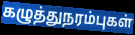
கழுத்துநரம்புகள்